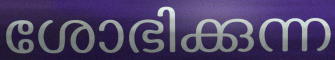
ശോഭിക്കുന്ന